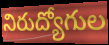
నిరుద్యోగుల